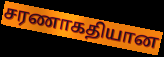
சரணாகதியான